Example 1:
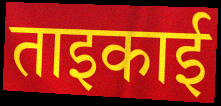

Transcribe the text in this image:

ताइकाई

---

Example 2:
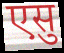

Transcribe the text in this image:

एसु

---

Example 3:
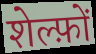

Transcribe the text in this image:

शेल्फ़ों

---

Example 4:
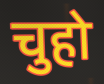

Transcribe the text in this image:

चुहो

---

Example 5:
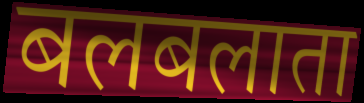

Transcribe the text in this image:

बलबलाता